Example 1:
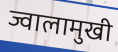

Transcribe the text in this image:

ज्‍वालामुखी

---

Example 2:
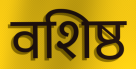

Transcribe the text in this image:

वशिष्ठ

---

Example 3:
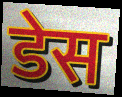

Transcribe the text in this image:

डेस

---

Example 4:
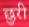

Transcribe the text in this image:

छुरी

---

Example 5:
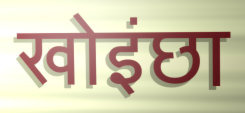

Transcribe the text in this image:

खोइंछा